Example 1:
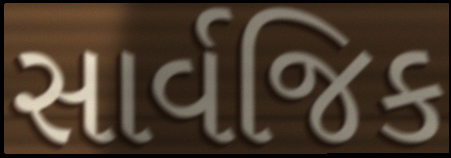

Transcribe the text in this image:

સાર્વજિક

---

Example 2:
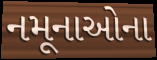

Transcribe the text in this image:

નમૂનાઓના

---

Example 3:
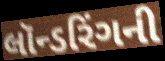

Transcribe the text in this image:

લૉન્ડરિંગની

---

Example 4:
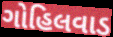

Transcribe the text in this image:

ગોહિલવાડ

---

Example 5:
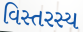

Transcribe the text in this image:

વિસ્તરસ્ય